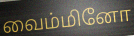
வைம்மினோ